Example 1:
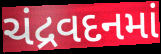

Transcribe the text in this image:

ચંદ્રવદનમાં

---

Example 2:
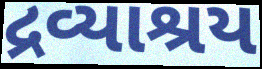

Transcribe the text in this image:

દ્રવ્યાશ્રય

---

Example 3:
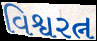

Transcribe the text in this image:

વિશ્વરત્ન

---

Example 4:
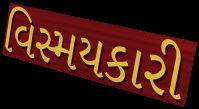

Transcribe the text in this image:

વિસ્મયકારી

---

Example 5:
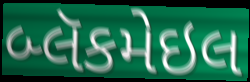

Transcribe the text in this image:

બ્લૅકમેઇલ